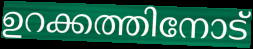
ഉറക്കത്തിനോട്